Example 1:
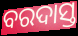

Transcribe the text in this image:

ବରଦାସ୍ତ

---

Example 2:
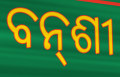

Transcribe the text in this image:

ବନ୍‍ଶୀ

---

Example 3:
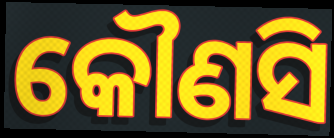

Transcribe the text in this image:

କୌଣସି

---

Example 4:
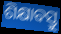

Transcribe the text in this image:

ଶିକ୍ଷାବସ୍ତୁ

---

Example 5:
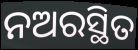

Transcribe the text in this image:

ନଅରସ୍ଥିତ